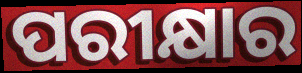
ପରୀକ୍ଷାର